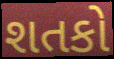
શતકો